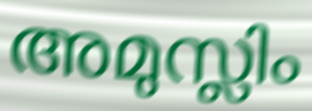
അമുസ്ലിം